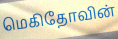
மெகிதோவின்